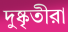
দুষ্কৃতীরা